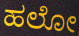
ಹಲೋ